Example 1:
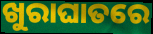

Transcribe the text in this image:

ଖୁରାଘାତରେ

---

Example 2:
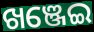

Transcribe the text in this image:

ଖଞ୍ଜେଇ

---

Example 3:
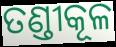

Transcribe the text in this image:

ତଣ୍ଡୀକୂଳ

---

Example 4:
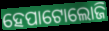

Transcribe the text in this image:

ହେପାଟୋଲୋଜି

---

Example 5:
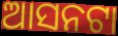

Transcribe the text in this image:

ଆସନଟା